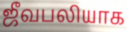
ஜீவபலியாக